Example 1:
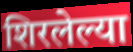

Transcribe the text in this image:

शिरलेल्या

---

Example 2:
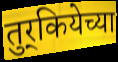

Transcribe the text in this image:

तुर्कियेच्या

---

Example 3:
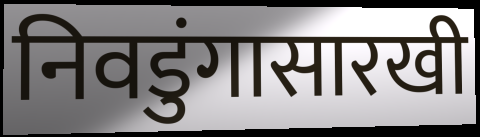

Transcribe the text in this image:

निवडुंगासारखी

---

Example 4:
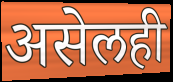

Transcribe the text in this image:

असेलही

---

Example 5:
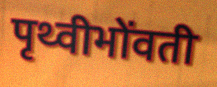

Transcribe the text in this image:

पृथ्वीभोंवती